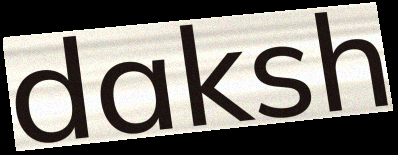
daksh